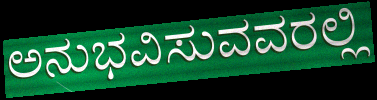
ಅನುಭವಿಸುವವರಲ್ಲಿ